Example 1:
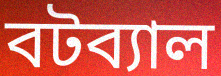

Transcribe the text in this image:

বটব্যাল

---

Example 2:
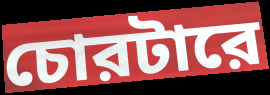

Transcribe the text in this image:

চোরটারে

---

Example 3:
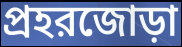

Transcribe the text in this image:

প্রহরজোড়া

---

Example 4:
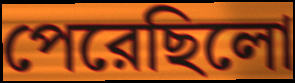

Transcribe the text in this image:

পেরেছিলো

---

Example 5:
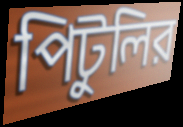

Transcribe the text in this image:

পিটুলির